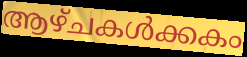
ആഴ്ചകൾക്കകം